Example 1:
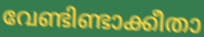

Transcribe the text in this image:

വേണ്ടിണ്ടാക്കീതാ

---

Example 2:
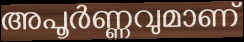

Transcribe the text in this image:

അപൂർണ്ണവുമാണ്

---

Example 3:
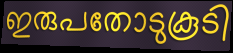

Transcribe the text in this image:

ഇരുപതോടുകൂടി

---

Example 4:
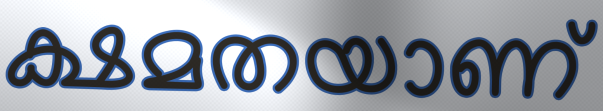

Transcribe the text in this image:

ക്ഷമതയാണ്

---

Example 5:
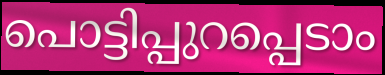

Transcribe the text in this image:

പൊട്ടിപ്പുറപ്പെടാം